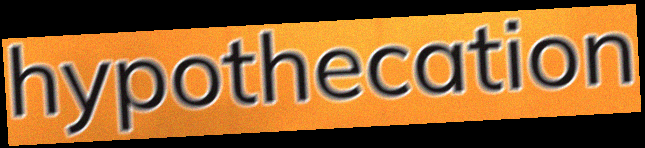
hypothecation